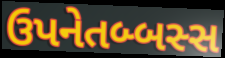
ઉપનેતબ્બસ્સ